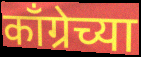
काँग्रेच्या